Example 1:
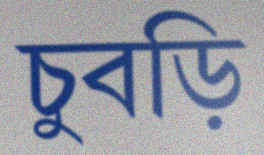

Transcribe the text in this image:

চুবড়ি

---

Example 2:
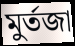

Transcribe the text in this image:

মুর্তজা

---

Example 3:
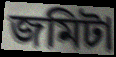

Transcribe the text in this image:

জমিটা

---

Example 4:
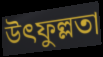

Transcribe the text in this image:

উৎফুল্লতা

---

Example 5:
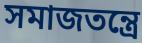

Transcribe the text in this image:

সমাজতন্ত্রে